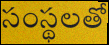
సంస్థలతో